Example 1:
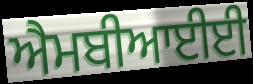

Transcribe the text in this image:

ਐਮਬੀਆਈਈ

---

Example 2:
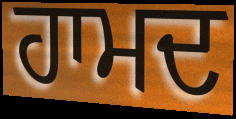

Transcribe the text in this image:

ਹਾਮਦ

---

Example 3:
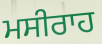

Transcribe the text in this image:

ਮਸੀਰਾਹ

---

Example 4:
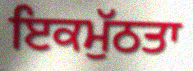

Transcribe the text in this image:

ਇਕਮੁੱਠਤਾ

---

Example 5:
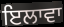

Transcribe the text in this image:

ਇਲਾਵਾ